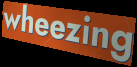
wheezing